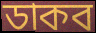
ডাকব